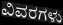
ವಿವರಗಳು